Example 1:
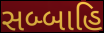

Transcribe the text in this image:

સબ્બાહિ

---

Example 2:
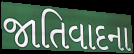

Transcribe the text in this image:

જાતિવાદના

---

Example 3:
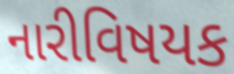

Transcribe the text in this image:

નારીવિષયક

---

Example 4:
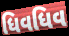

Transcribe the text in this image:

ધિવધિવ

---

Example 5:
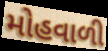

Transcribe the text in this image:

મોહવાળી